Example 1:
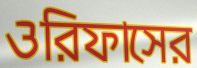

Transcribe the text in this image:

ওরিফাসের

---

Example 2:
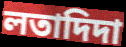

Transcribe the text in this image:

লতাদিদা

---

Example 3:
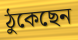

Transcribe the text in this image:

ঠুকেছেন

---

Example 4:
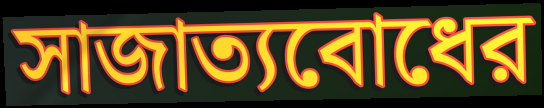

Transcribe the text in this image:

সাজাত্যবোধের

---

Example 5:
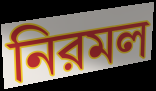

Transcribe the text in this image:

নিরমল